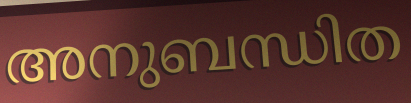
അനുബന്ധിത